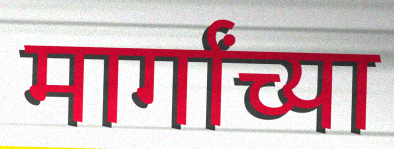
मार्गांच्या